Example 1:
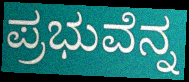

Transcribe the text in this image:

ಪ್ರಭುವೆನ್ನ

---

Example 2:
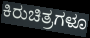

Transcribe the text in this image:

ಕಿರುಚಿತ್ರಗಳೂ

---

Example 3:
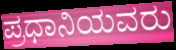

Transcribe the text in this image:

ಪ್ರಧಾನಿಯವರು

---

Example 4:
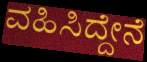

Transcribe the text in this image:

ವಹಿಸಿದ್ದೇನೆ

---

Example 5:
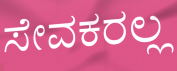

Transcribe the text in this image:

ಸೇವಕರಲ್ಲ